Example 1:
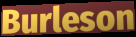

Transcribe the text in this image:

Burleson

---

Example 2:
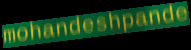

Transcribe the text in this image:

mohandeshpande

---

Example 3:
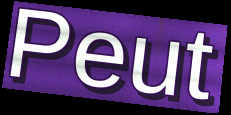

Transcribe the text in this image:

Peut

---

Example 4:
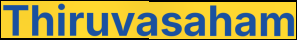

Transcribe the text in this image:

Thiruvasaham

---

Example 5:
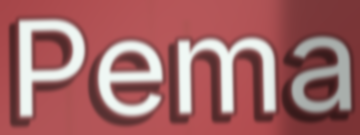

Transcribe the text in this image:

Pema